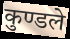
कुण्डले